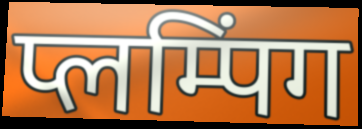
प्लम्पिंग